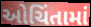
ઓચિંતામાં